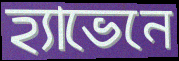
হ্যাভেনে